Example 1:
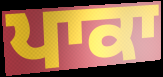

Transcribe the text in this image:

ਪਾਕਾ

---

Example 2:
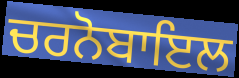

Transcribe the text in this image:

ਚਰਨੋਬਾਇਲ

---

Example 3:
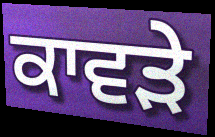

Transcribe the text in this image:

ਕਾਵੜੇ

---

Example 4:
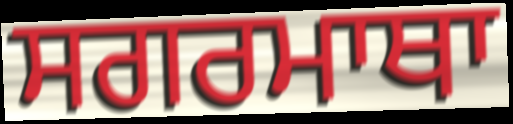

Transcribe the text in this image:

ਸਗਰਮਾਥਾ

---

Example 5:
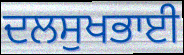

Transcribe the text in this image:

ਦਲਸੁਖਭਾਈ